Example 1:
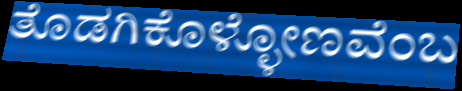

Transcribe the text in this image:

ತೊಡಗಿಕೊಳ್ಳೋಣವೆಂಬ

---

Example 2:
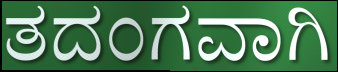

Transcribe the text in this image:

ತದಂಗವಾಗಿ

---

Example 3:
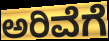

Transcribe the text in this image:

ಅರಿವೆಗೆ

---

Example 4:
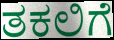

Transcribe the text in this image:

ತಕಲಿಗೆ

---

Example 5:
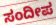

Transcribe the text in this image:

ಸಂದೀಪ